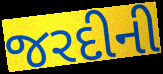
જરદીની